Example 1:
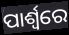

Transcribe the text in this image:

ପାର୍ଶ୍ୱରେ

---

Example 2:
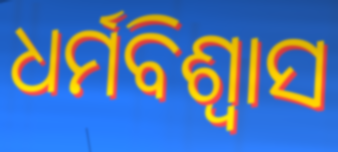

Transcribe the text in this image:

ଧର୍ମବିଶ୍ଵାସ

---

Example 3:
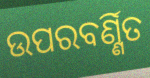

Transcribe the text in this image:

ଉପରବର୍ଣ୍ଣିତ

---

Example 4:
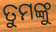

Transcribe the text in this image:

ତୁମଙ୍କୁ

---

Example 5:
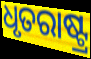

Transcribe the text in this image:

ଧୃତରାଷ୍ଟ୍ର